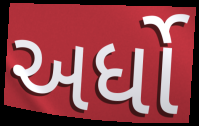
અર્ધો